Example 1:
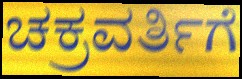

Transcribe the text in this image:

ಚಕ್ರವರ್ತಿಗೆ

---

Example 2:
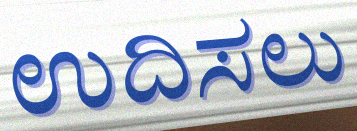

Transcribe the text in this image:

ಉದಿಸಲು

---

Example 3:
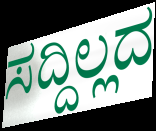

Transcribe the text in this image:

ಸದ್ದಿಲ್ಲದ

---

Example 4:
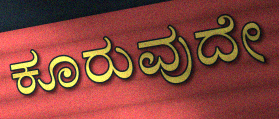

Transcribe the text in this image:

ಕೂರುವುದೇ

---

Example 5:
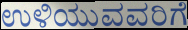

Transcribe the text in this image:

ಉಳಿಯುವವರಿಗೆ